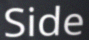
Side